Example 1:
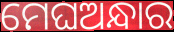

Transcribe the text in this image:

ମେଘଅନ୍ଧାର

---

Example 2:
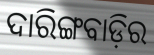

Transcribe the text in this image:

ଦାରିଙ୍ଗବାଡ଼ିର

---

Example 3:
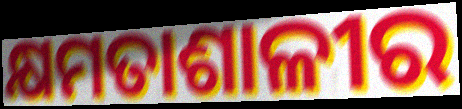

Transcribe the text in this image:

କ୍ଷମତାଶାଳୀର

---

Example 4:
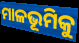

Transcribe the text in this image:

ମାଳଭୂମିକୁ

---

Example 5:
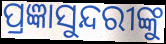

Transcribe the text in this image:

ପ୍ରଜ୍ଞାସୁନ୍ଦରୀଙ୍କୁ